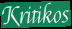
Kritikos